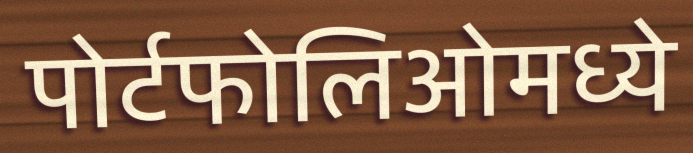
पोर्टफोलिओमध्ये